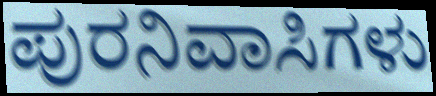
ಪುರನಿವಾಸಿಗಳು